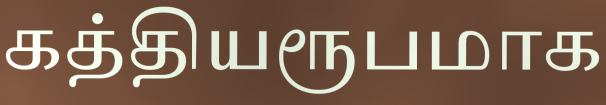
கத்தியரூபமாக